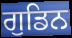
ਗੁਡਿਨ